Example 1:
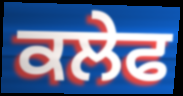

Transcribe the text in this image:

ਕਲੇਫ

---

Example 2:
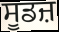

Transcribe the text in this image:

ਸੂਡਜ਼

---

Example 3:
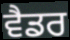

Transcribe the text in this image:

ਵੈਡਰ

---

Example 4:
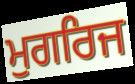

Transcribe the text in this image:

ਮੁਗਰਿਜ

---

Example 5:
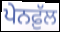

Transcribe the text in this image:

ਪੇਨਫ਼ੁੱਲ